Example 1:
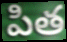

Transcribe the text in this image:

పిత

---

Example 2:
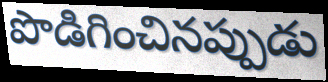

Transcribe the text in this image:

పొడిగించినప్పుడు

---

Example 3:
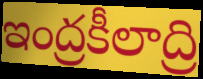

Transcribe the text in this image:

ఇంద్రకీలాద్రి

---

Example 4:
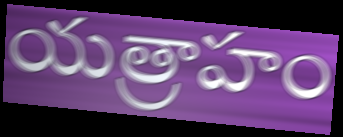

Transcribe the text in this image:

యత్రాహం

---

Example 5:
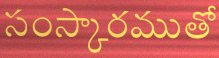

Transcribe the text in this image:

సంస్కారముతో